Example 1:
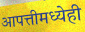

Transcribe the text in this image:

आपत्तीमध्येही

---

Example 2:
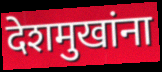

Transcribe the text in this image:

देशमुखांना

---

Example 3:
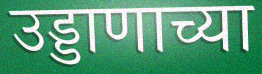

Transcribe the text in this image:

उड्डाणाच्या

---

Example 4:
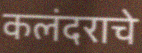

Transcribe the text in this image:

कलंदराचे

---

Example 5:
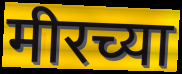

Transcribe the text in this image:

मीरच्या